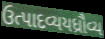
ઉત્પાદવ્યયધ્રૌવ્ય